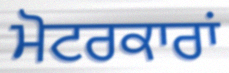
ਮੋਟਰਕਾਰਾਂ